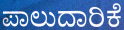
ಪಾಲುದಾರಿಕೆ